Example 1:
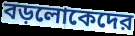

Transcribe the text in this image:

বড়লোকেদের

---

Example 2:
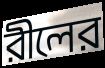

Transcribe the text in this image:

রীলের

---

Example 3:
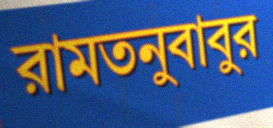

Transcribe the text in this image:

রামতনুবাবুর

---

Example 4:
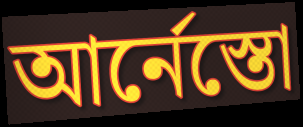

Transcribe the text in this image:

আর্নেস্তো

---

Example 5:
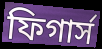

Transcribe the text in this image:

ফিগার্স